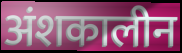
अंशकालीन